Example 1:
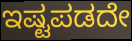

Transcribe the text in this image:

ಇಷ್ಟಪಡದೇ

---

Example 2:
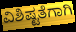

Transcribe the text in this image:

ವಿಶಿಷ್ಟತೆಗಾಗಿ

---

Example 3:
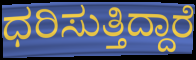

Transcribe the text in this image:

ಧರಿಸುತ್ತಿದ್ದಾರೆ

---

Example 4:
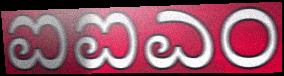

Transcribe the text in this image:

ಐಐಎಂ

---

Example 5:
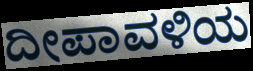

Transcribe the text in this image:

ದೀಪಾವಳಿಯ